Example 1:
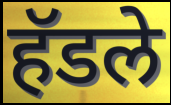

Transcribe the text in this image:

हॅडले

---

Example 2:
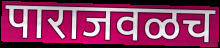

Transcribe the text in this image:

पाराजवळच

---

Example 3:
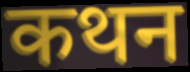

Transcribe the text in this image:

कथन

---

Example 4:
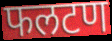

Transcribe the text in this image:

फलटण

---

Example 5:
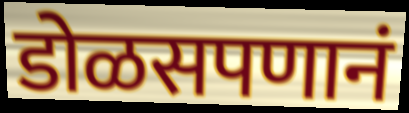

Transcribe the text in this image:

डोळसपणानं